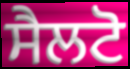
ਸੈਲਟੋ